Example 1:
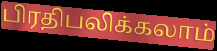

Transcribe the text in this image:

பிரதிபலிக்கலாம்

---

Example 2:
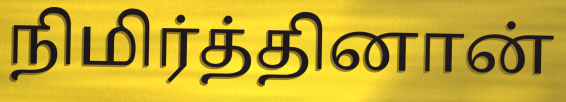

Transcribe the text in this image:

நிமிர்த்தினான்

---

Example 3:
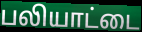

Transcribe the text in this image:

பலியாட்டை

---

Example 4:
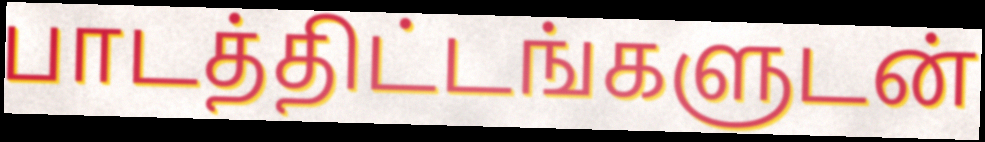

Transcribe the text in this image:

பாடத்திட்டங்களுடன்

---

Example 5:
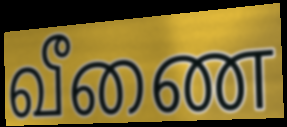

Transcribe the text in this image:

வீணை